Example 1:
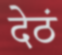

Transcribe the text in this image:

देठं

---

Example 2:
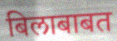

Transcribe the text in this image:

बिलाबाबत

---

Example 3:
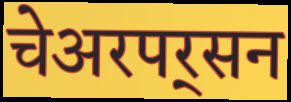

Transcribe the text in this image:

चेअरपर्सन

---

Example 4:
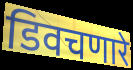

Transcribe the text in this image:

डिवचणारे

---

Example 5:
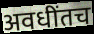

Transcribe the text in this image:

अवधींतच